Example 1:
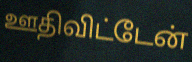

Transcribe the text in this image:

ஊதிவிட்டேன்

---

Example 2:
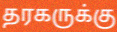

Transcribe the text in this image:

தரகருக்கு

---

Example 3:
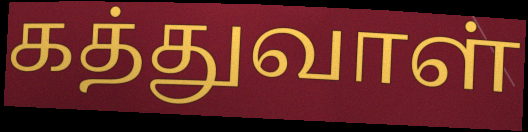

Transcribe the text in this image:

கத்துவாள்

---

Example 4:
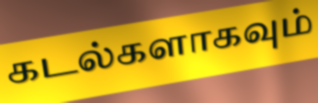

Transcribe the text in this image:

கடல்களாகவும்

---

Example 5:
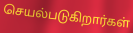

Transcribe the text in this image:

செயல்படுகிறார்கள்